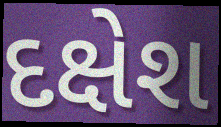
દક્ષેશ